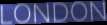
LONDON